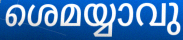
ശെമയ്യാവു